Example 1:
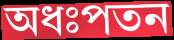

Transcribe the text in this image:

অধঃপতন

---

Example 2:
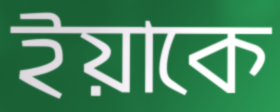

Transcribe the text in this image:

ইয়াকে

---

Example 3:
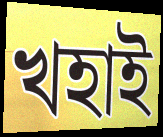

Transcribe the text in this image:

খহাই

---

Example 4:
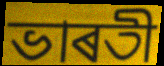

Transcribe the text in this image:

ভাৰতী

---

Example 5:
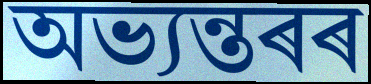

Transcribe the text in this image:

অভ্যন্তৰৰ